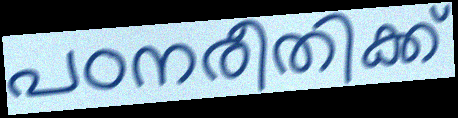
പഠനരീതിക്ക്